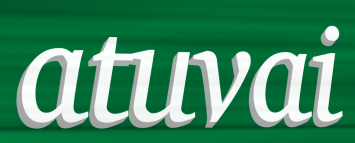
atuvai